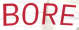
BORE